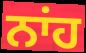
ਨਾਂਹ